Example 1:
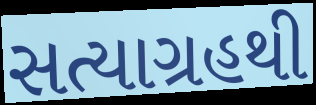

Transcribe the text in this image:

સત્યાગ્રહથી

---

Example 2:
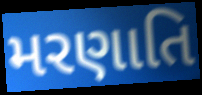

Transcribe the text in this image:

મરણાતિ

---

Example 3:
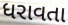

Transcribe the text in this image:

ધરાવતા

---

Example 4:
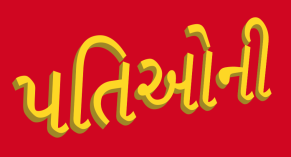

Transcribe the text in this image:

પતિઓની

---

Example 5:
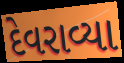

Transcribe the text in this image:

દેવરાવ્યા